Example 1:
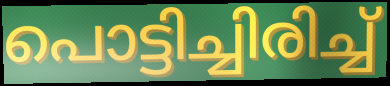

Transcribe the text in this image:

പൊട്ടിച്ചിരിച്ച്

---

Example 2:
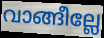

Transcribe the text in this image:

വാങ്ങീല്ലേ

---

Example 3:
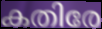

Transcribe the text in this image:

കതിരേ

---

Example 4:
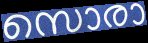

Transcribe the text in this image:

സൊരാ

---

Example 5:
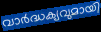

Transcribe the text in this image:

വാർദ്ധക്യവുമായി